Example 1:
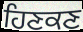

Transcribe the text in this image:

ਹਿਣਕਣ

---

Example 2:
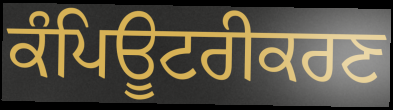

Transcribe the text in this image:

ਕੰਪਿਊਟਰੀਕਰਣ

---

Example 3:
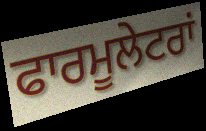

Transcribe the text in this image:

ਫਾਰਮੂਲੇਟਰਾਂ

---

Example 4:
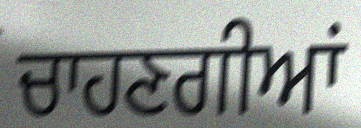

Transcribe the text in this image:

ਚਾਹਣਗੀਆਂ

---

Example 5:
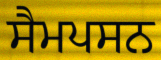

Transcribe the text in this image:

ਸੈਮਪਸਨ